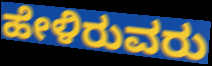
ಹೇಳಿರುವರು